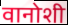
वानोशी